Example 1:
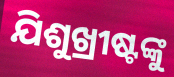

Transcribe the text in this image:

ଯିଶୁଖ୍ରୀଷ୍ଟଙ୍କୁ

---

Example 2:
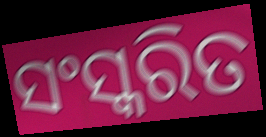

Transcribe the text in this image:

ସଂସ୍କରିତ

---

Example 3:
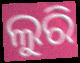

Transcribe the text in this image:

ଲୁରି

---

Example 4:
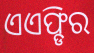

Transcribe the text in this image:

ଏଏଫ୍ଡିର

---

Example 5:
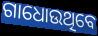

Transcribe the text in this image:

ଗାଧୋଉଥିବେ